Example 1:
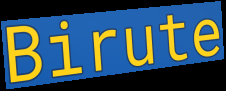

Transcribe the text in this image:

Birute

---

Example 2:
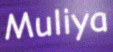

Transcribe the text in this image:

Muliya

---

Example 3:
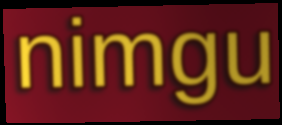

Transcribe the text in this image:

nimgu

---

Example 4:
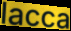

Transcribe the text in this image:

lacca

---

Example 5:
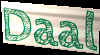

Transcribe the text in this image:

Daal